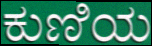
ಕುಣಿಯ